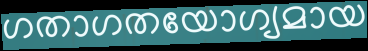
ഗതാഗതയോഗ്യമായ